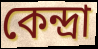
কেন্দ্রা